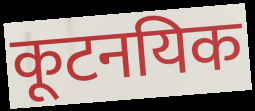
कूटनयिक